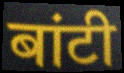
बांटी